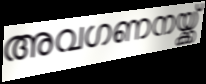
അവഗണനയ്ക്ക്